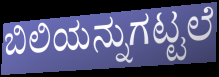
ಬಿಲಿಯನ್ನುಗಟ್ಟಲೆ